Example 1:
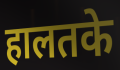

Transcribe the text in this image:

हालतके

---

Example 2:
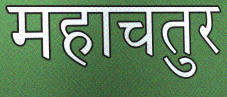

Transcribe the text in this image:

महाचतुर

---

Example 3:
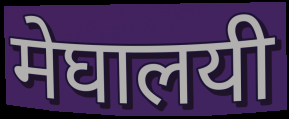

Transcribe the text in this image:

मेघालयी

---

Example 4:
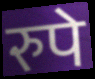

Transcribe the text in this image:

रुपे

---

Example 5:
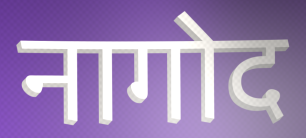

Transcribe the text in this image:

नागोद